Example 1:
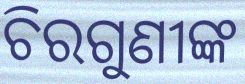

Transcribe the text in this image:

ଚିରଗୁଣୀଙ୍କ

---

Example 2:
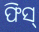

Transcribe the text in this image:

ଫିସ୍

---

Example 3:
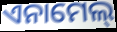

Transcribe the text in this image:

ଏନାମେଲ୍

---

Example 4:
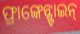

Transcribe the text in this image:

ଫ୍ରାଙ୍କେନ୍ଷ୍ଟାଇନ୍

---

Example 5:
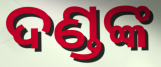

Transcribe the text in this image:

ଦଣ୍ଡଙ୍କ